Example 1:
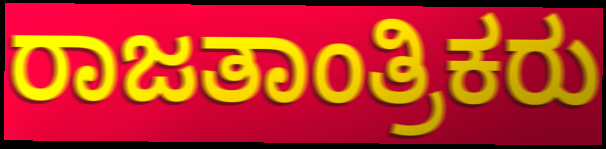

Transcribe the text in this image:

ರಾಜತಾಂತ್ರಿಕರು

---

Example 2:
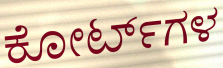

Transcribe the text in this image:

ಕೋರ್ಟ್‌ಗಳ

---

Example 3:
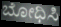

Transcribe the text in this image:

ಬೋಧಿಸಿ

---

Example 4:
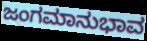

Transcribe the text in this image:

ಜಂಗಮಾನುಭಾವ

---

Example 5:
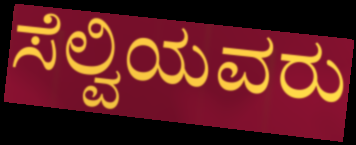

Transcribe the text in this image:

ಸೆಲ್ವಿಯವರು